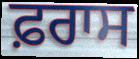
ਫ਼ਰਾਸ